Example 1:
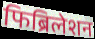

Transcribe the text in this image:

फिब्रिलेशन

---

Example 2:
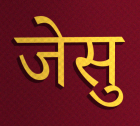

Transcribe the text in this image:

जेसु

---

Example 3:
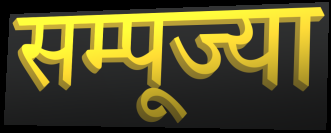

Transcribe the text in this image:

सम्पूज्या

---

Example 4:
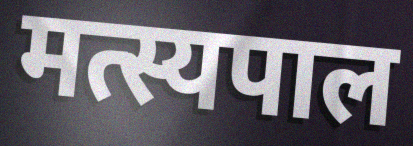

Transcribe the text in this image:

मत्स्यपाल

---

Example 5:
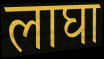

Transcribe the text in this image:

लाघा